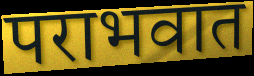
पराभवात